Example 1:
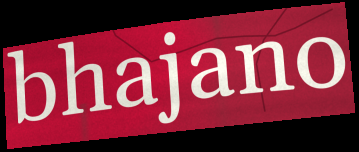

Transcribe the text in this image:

bhajano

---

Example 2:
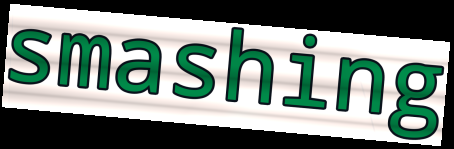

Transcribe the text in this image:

smashing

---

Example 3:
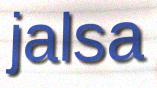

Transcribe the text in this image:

jalsa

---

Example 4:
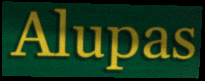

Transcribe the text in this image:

Alupas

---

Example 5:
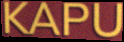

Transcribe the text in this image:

KAPU